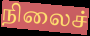
நிலைச்